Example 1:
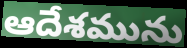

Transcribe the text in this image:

ఆదేశమును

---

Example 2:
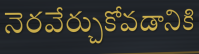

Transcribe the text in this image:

నెరవేర్చుకోవడానికి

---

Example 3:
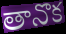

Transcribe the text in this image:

తానొక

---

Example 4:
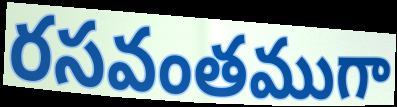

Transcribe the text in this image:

రసవంతముగా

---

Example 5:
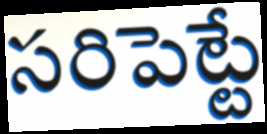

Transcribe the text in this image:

సరిపెట్టే